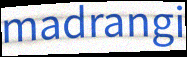
madrangi